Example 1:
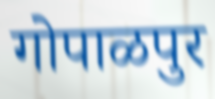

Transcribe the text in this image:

गोपाळपुर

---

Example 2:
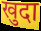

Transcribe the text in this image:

खुदा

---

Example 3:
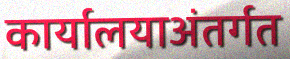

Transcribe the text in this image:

कार्यालयाअंतर्गत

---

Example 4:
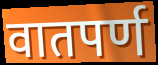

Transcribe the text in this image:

वातपर्ण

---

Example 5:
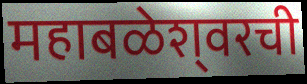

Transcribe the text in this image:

महाबळेश्वरची